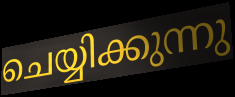
ചെയ്യിക്കുന്നു